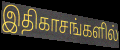
இதிகாசங்களில்